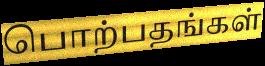
பொற்பதங்கள்